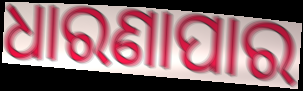
ଧାରଣାପାର